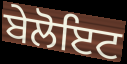
ਬੇਲੋਇਟ